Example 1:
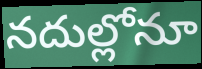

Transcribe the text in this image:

నదుల్లోనూ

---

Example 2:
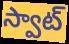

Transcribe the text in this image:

స్వాట్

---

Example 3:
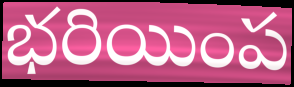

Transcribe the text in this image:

భరియింప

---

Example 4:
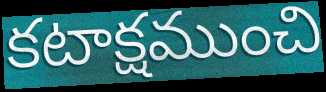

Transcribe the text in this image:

కటాక్షముంచి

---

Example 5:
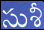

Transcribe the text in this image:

సుశీ